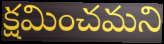
క్షమించమని